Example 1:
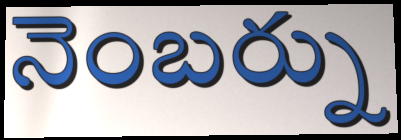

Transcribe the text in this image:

నెంబర్ను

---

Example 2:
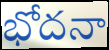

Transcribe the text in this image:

భోదనా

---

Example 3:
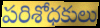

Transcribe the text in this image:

పరిశోధకులు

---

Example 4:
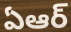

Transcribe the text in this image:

ఏఆర్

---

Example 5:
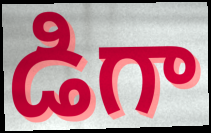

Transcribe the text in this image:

డిగా